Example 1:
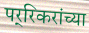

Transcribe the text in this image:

पर्रिकरांच्या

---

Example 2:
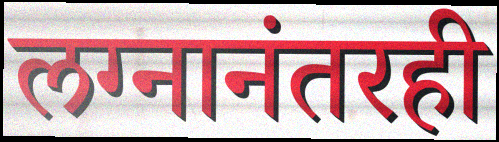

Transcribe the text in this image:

लग्नानंतरही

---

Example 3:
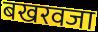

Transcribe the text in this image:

बखरवजा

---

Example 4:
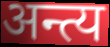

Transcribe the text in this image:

अन्त्य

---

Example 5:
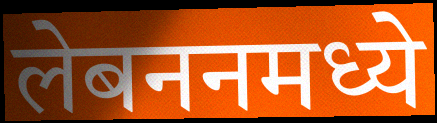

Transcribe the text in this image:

लेबननमध्ये